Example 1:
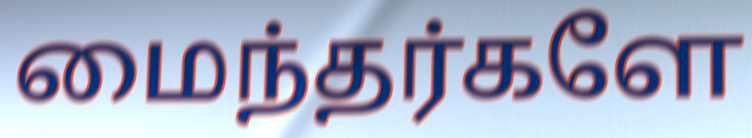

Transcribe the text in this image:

மைந்தர்களே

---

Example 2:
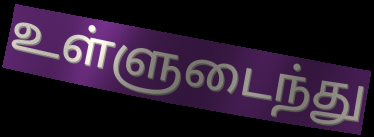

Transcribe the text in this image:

உள்ளுடைந்து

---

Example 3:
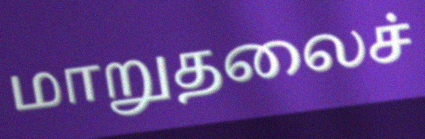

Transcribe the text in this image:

மாறுதலைச்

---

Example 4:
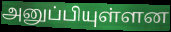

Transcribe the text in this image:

அனுப்பியுள்ளன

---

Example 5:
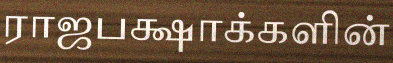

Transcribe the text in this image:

ராஜபக்ஷாக்களின்